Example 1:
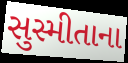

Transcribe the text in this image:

સુસ્મીતાના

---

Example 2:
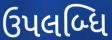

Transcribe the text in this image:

ઉપલબ્ધિ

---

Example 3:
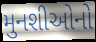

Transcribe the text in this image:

મુનશીઓનો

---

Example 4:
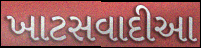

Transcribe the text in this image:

ખાટસવાદીઆ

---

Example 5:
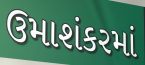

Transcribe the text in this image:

ઉમાશંકરમાં